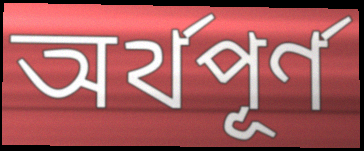
অৰ্থপূৰ্ণ